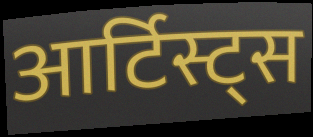
आर्टिस्ट्स